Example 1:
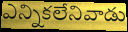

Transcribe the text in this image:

ఎన్నికలేనివాడు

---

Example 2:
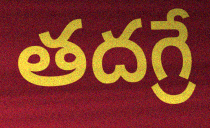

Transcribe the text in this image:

తదగ్రే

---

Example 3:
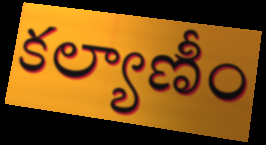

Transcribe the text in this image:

కల్యాణీం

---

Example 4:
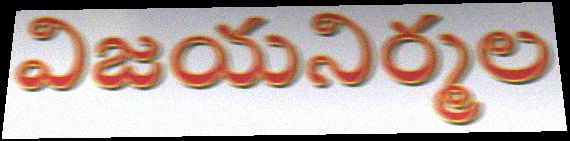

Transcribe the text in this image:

విజయనిర్మల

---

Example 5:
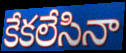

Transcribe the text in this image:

కేకలేసినా